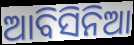
ଆବିସିନିଆ